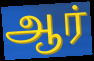
ஆர்